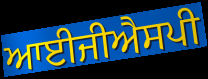
ਆਈਜੀਐਸਪੀ